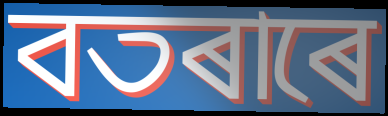
বতৰাৰে